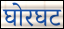
घोरघट